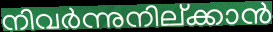
നിവർന്നുനില്ക്കാൻ